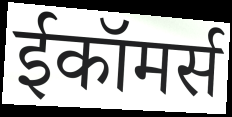
ईकॉमर्स